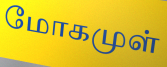
மோகமுள்